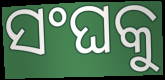
ସଂଘକୁ